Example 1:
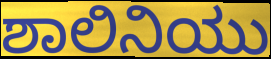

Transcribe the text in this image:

ಶಾಲಿನಿಯು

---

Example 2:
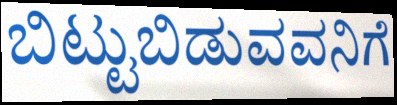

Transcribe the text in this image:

ಬಿಟ್ಟುಬಿಡುವವನಿಗೆ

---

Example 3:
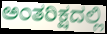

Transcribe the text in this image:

ಅಂತರಿಕ್ಷದಲ್ಲಿ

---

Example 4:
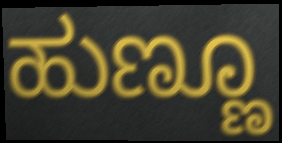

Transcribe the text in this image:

ಹುಣ್ಣೂ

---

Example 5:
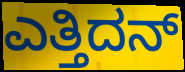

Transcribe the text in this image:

ಎತ್ತಿದನ್